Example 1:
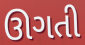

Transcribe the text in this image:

ઊગતી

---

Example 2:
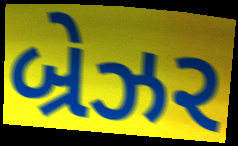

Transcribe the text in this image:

બ્રેઝર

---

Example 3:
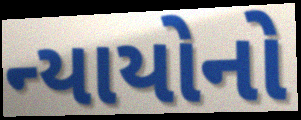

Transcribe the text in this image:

ન્યાયોનો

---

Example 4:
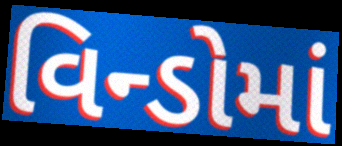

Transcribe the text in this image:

વિન્ડોમાં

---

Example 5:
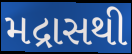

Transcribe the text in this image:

મદ્રાસથી